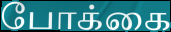
போக்கை